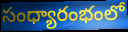
సంధ్యారంభంలో